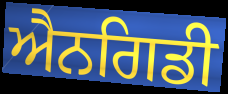
ਐਨਗਿਡੀ